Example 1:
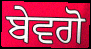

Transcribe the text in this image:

ਬੇਵਗੋ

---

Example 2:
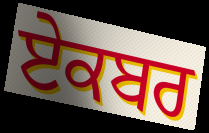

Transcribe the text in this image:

ਏਕਬਰ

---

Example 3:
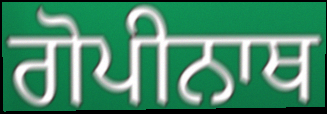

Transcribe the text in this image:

ਗੋਪੀਨਾਥ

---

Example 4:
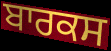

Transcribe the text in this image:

ਬਾਰਕਸ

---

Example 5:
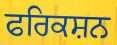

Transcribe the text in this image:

ਫਰਿਕਸ਼ਨ